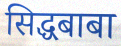
सिद्धबाबा